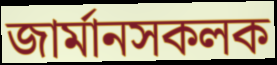
জাৰ্মানসকলক